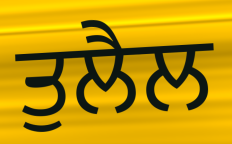
ਤੁਲੈਲ